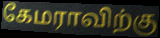
கேமராவிற்கு